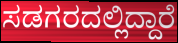
ಸಡಗರದಲ್ಲಿದ್ದಾರೆ